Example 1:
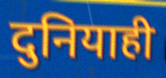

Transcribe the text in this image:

दुनियाही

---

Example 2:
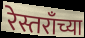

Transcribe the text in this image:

रेस्तराँच्या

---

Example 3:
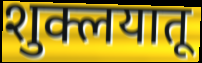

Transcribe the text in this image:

शुक्लयातू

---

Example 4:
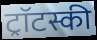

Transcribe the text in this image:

ट्रॉटस्की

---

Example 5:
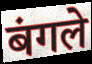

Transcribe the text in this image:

बंगले